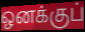
ஒனக்குப்